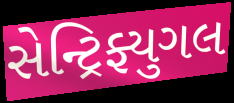
સેન્ટ્રિફ્યુગલ